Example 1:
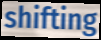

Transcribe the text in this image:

shifting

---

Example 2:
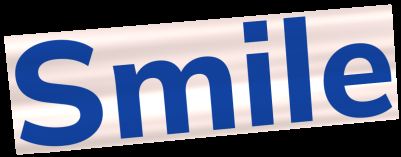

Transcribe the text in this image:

Smile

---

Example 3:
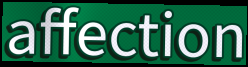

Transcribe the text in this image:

affection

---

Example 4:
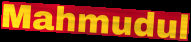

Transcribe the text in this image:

Mahmudul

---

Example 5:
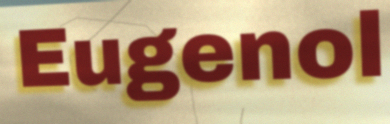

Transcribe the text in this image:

Eugenol